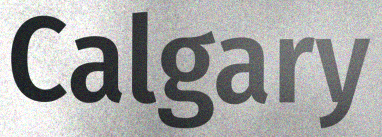
Calgary